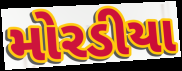
મોરડીયા